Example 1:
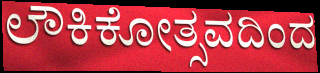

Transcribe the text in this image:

ಲೌಕಿಕೋತ್ಸವದಿಂದ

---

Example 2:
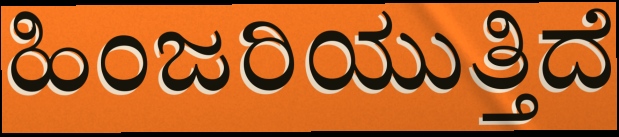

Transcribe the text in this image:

ಹಿಂಜರಿಯುತ್ತಿದೆ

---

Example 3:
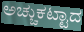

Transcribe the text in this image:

ಅಚ್ಚುಕಟ್ಟಾದ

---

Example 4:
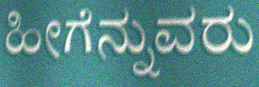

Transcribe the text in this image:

ಹೀಗೆನ್ನುವರು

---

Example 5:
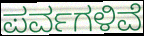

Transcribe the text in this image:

ಪರ್ವಗಳಿವೆ